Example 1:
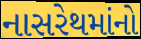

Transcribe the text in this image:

નાસરેથમાંનો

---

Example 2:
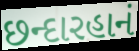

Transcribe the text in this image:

છન્દારહાનં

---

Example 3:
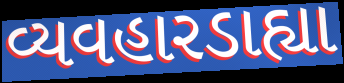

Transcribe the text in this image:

વ્યવહારડાહ્યા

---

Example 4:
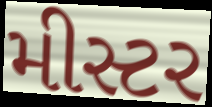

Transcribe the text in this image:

મીસ્ટર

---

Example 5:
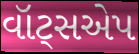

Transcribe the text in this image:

વૉટ્સએપ